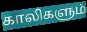
காலிகளும்